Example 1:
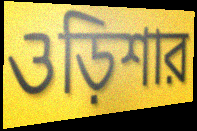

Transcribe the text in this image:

ওড়িশার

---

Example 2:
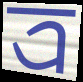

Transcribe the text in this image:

ত্র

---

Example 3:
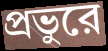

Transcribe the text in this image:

প্রভুরে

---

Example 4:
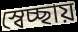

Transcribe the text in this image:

স্বেচ্ছায়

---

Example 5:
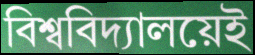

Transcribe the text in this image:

বিশ্ববিদ্যালয়েই